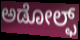
ಅಡೋಲ್ಫ್